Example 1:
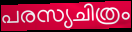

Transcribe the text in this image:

പരസ്യചിത്രം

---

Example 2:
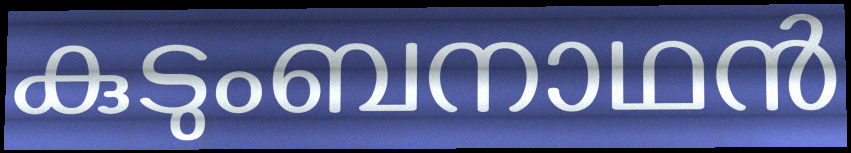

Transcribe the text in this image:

കുടുംബനാഥൻ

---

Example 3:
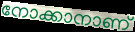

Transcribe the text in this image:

നോക്കാനാണ്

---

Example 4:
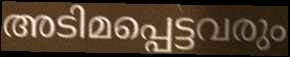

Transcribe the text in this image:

അടിമപ്പെട്ടവരും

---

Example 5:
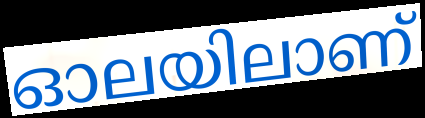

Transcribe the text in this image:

ഓലയിലാണ്